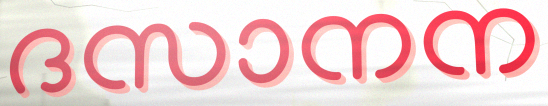
ദസാനന